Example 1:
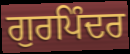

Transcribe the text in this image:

ਗੁਰਪਿੰਦਰ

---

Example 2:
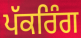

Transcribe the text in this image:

ਪੱਕਰਿੰਗ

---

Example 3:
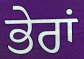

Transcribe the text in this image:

ਭੇਰਾਂ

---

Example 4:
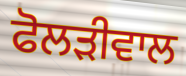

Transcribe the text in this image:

ਫੋਲੜੀਵਾਲ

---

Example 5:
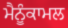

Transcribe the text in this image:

ਮੈਨੂੰਕਾਮਲ